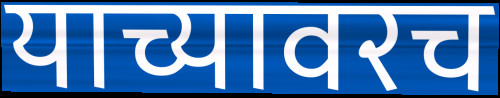
याच्यावरच